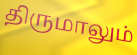
திருமாலும்